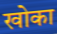
खोका